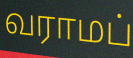
வராமப்